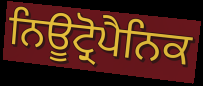
ਨਿਊਟ੍ਰੋਪੈਨਿਕ